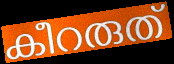
കീറരുത്